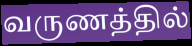
வருணத்தில்